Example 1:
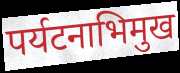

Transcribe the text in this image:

पर्यटनाभिमुख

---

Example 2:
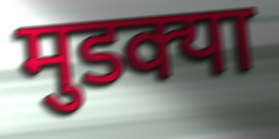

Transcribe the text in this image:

मुडक्या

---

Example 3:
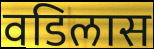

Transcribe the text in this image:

वडिलास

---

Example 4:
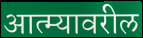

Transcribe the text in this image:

आत्म्यावरील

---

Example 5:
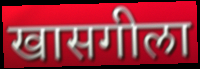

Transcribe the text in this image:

खासगीला